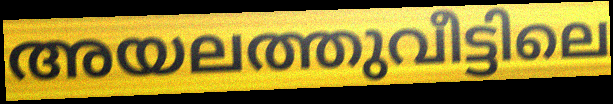
അയലത്തുവീട്ടിലെ